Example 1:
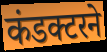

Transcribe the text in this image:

कंडक्टरने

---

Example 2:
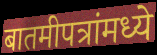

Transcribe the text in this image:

बातमीपत्रांमध्ये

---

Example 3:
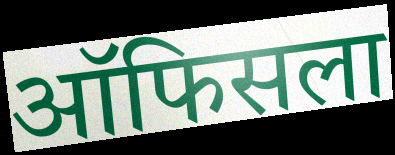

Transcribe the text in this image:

ऑफिसला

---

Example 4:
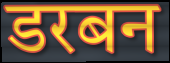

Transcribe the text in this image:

डरबन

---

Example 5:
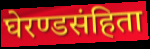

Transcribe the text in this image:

घेरण्डसंहिता